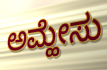
ಅಮ್ಹೇಸು